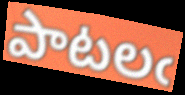
పాటలఁ